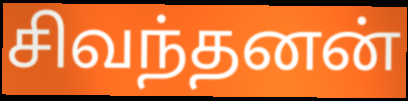
சிவந்தனன்